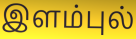
இளம்புல்